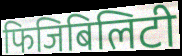
फिजिबिलिटी